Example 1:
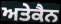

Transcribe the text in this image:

ਅਤੇਕੈਨ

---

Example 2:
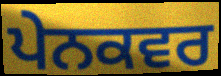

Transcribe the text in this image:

ਪੇਨਕਵਰ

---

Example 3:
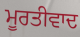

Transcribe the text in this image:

ਮੂਰਤੀਵਾਦ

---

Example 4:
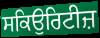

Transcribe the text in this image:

ਸਕਿਉਰਿਟੀਜ਼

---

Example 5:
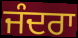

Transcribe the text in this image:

ਜੰਦਰਾ